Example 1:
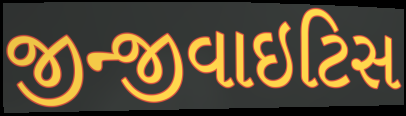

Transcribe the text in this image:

જીન્જીવાઇટિસ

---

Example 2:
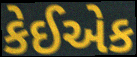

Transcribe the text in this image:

કેઈએક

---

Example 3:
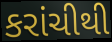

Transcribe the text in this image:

કરાંચીથી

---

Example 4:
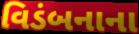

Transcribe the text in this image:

વિડંબનાના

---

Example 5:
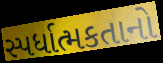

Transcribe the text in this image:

સ્પર્ધાત્મકતાનો